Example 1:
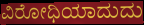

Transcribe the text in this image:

ವಿರೋಧಿಯಾದುದು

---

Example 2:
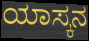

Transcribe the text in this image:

ಯಾಸ್ಕನ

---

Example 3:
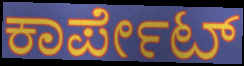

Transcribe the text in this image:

ಕಾರ್ಪೇಟ್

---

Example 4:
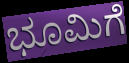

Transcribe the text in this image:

ಭೂಮಿಗೆ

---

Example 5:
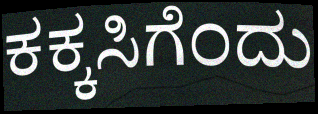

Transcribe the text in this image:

ಕಕ್ಕಸಿಗೆಂದು